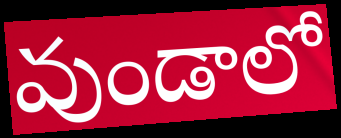
వుండాలో